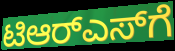
ಟಿಆರ್‌ಎಸ್‌ಗೆ